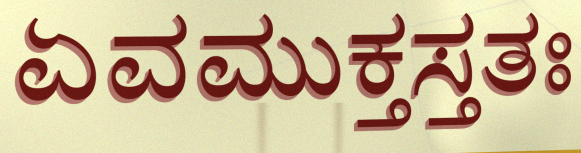
ಏವಮುಕ್ತಸ್ತತಃ